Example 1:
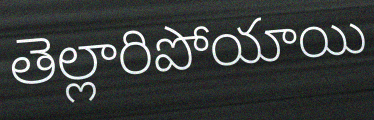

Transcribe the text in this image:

తెల్లారిపోయాయి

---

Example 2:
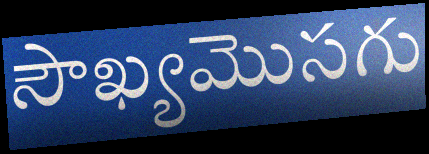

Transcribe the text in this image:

సౌఖ్యమొసగు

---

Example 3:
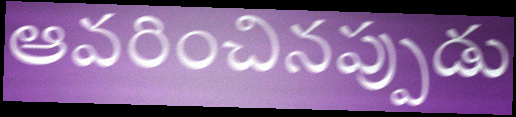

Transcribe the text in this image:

ఆవరించినప్పుడు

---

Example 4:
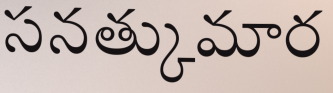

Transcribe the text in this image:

సనత్కుమార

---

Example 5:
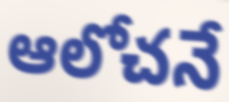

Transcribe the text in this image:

ఆలోచనే